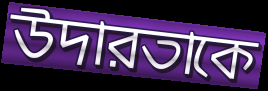
উদারতাকে